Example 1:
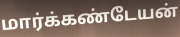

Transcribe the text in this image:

மார்க்கண்டேயன்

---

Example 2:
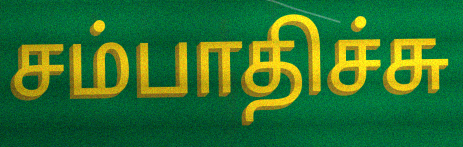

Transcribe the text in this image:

சம்பாதிச்சு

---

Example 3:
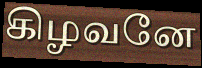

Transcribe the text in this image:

கிழவனே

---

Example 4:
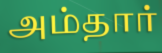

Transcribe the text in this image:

அம்தார்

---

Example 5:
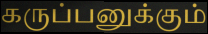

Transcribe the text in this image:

கருப்பனுக்கும்